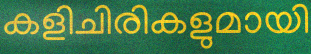
കളിചിരികളുമായി